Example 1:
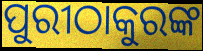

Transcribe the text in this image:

ପୁରୀଠାକୁରଙ୍କ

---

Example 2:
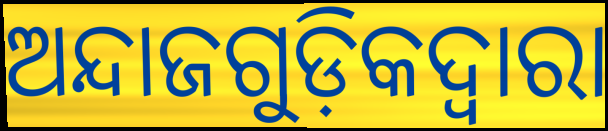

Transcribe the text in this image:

ଅନ୍ଦାଜଗୁଡ଼ିକଦ୍ୱାରା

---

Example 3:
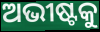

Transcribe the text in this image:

ଅଭୀଷ୍ଟକୁ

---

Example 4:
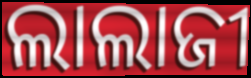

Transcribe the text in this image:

ଲାଲାଜୀ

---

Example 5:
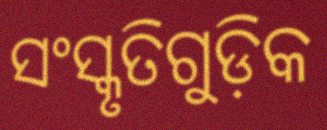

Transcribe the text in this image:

ସଂସ୍କୃତିଗୁଡ଼ିକ